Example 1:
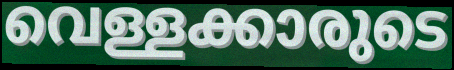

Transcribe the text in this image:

വെള്ളക്കാരുടെ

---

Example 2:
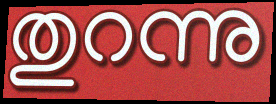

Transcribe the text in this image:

തുറന്നു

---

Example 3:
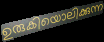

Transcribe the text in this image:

ഉരുകിയൊലിക്കുന്ന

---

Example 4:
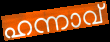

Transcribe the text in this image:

ഹന്നാവ്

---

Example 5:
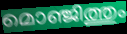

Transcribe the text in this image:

മൊഞ്ജിത്തും